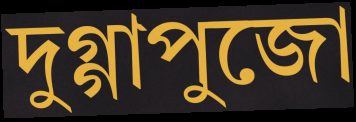
দুগ্গাপুজো